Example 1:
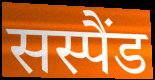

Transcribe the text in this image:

सस्पैंड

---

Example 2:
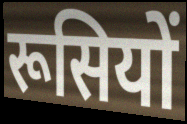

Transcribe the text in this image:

रूसियों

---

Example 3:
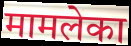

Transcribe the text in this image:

मामलेका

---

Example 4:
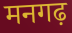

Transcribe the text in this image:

मनगढ़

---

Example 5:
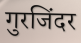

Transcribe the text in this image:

गुरजिंदर